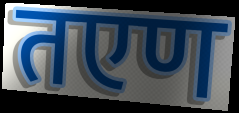
तएण